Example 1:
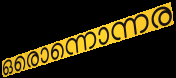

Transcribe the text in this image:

ഒരൊന്നൊന്നര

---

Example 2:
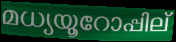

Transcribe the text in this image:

മധ്യയൂറോപ്പില്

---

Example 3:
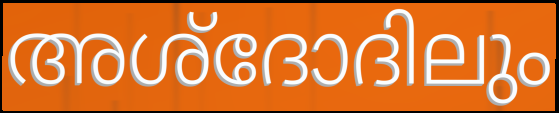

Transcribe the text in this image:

അശ്ദോദിലും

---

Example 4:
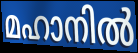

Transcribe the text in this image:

മഹാനിൽ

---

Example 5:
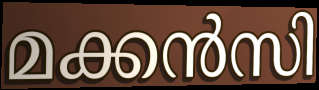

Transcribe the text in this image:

മക്കൻസി